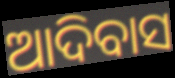
ଆଦିବାସ